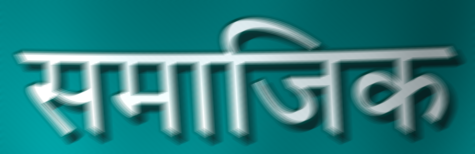
समाजिक